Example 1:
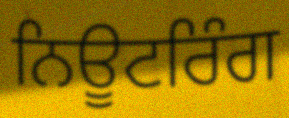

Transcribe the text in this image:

ਨਿਊਟਰਿੰਗ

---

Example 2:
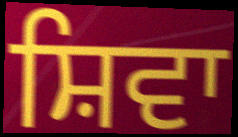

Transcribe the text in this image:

ਸ਼ਿਵਾ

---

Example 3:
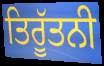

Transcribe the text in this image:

ਤਿਰੂੱਤਨੀ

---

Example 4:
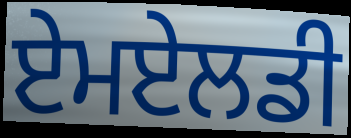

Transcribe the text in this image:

ਏਮਏਲਡੀ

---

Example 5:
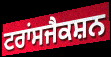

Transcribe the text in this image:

ਟਰਾਂਸਜੈਕਸ਼ਨ